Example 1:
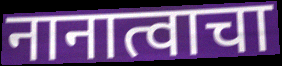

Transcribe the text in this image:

नानात्वाचा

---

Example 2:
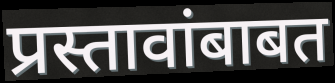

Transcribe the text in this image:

प्रस्तावांबाबत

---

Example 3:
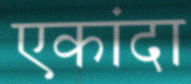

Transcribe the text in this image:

एकांदा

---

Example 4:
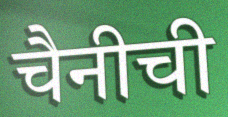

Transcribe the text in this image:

चैनीची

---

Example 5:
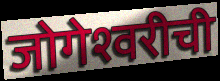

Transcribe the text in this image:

जोगेश्वरीची